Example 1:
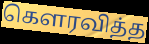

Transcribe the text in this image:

கெளரவித்த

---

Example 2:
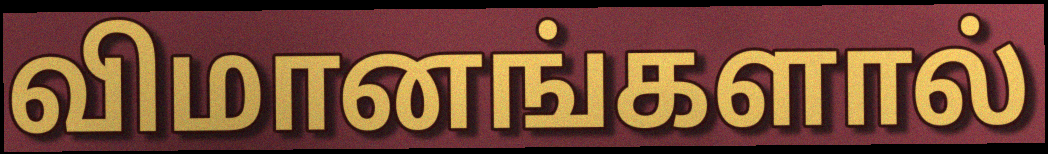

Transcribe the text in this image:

விமானங்களால்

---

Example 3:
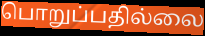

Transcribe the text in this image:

பொறுப்பதில்லை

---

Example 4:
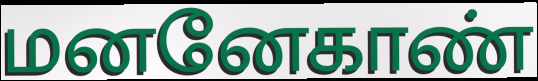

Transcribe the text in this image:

மனனேகாண்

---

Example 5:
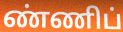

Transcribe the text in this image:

ண்ணிப்